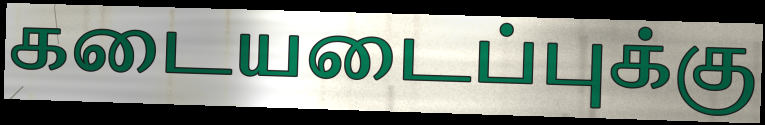
கடையடைப்புக்கு